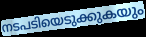
നടപടിയെടുക്കുകയും